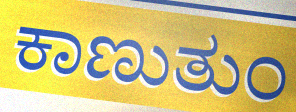
ಕಾಣುತುಂ